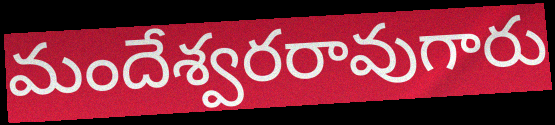
మందేశ్వరరావుగారు